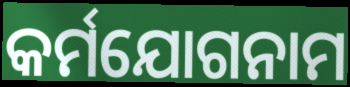
କର୍ମଯୋଗନାମ